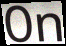
On